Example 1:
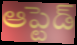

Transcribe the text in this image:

ఆప్టెడ్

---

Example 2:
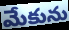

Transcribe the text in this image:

మేకును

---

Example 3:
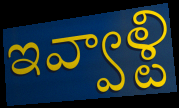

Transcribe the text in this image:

ఇవ్వాళ్టి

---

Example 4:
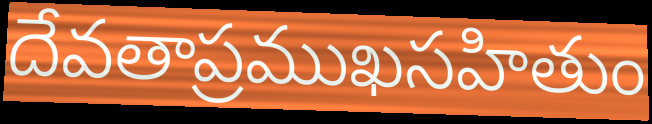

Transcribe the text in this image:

దేవతాప్రముఖసహితుం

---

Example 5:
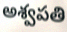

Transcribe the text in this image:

అశ్వపతి